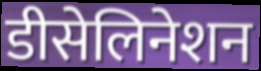
डीसेलिनेशन